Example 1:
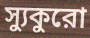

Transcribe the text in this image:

স্যুকুরো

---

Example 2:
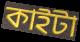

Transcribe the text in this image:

কাইটা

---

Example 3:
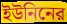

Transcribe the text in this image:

ইউনিনের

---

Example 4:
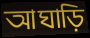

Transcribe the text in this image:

আঘাড়ি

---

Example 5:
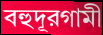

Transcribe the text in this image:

বহুদূরগামী